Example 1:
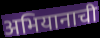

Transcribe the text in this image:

अभियानाची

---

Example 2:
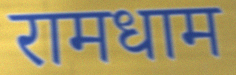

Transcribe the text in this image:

रामधाम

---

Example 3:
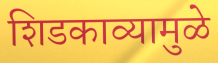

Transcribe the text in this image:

शिडकाव्यामुळे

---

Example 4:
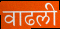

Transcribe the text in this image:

वाढली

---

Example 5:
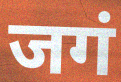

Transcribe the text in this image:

जगं